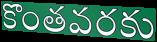
కొంతవరకు